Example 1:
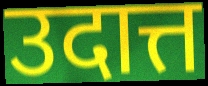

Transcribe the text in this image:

उदात्त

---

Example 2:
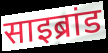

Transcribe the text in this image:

साइब्रांड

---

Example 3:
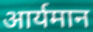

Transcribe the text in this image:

आर्यमान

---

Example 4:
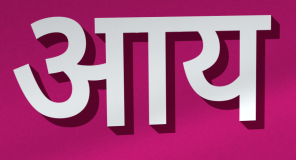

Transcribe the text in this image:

आय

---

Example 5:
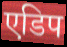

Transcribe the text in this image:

एडिप